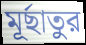
মূর্ছাতুর